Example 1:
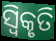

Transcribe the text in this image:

ସ୍ୱିକୃତି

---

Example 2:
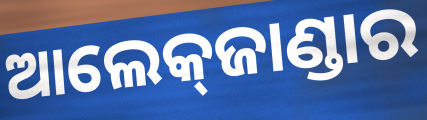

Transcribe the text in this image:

ଆଲେକ୍‌ଜାଣ୍ଡାର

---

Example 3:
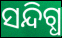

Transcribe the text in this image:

ସନ୍ଦିଗ୍ଧ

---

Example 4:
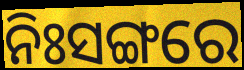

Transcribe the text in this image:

ନିଃସଙ୍ଗରେ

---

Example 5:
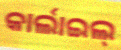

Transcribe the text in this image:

କାର୍ଲାଇଲ୍